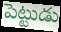
పెట్టుడు